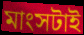
মাংসটাই